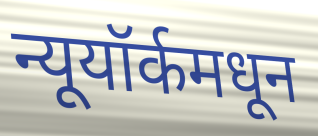
न्यूयॉर्कमधून